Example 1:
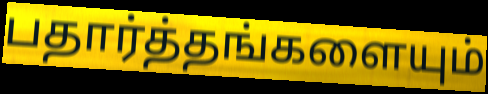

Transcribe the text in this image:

பதார்த்தங்களையும்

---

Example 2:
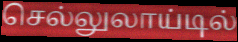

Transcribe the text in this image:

செல்லுலாய்டில்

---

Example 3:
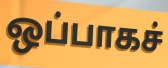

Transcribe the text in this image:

ஒப்பாகச்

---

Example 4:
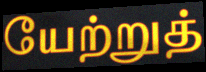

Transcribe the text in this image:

யேற்றுத்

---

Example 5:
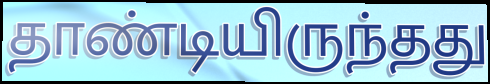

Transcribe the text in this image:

தாண்டியிருந்தது